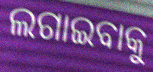
ଲଗାଇବାକୁ